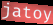
jatoy